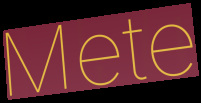
Mete